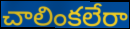
చాలింకలేరా